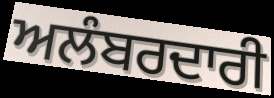
ਅਲੰਬਰਦਾਰੀ